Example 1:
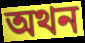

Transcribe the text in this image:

অথন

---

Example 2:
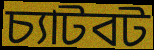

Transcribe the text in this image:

চ্যাটবট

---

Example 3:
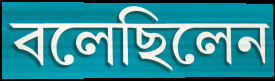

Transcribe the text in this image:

বলেছিলেন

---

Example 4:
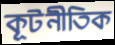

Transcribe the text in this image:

কূটনীতিক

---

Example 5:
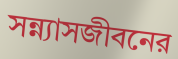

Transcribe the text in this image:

সন্ন্যাসজীবনের